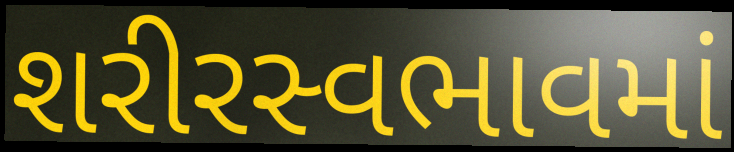
શરીરસ્વભાવમાં